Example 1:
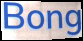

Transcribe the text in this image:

Bong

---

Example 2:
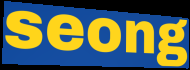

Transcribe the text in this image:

seong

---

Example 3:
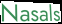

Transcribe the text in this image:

Nasals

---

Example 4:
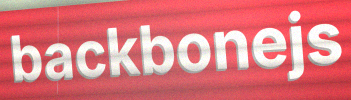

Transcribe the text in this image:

backbonejs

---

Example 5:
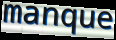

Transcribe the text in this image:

manque